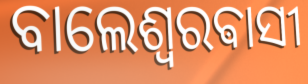
ବାଲେଶ୍ଵରଵାସୀ